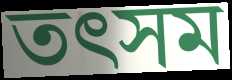
তৎসম